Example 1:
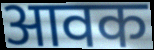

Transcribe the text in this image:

आवक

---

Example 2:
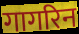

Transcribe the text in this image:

गागरिन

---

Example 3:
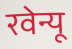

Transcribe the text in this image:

रवेन्यू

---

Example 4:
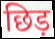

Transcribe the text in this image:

छिड़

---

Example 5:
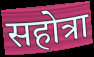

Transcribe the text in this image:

सहोत्रा